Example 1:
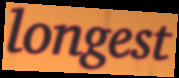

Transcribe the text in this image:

longest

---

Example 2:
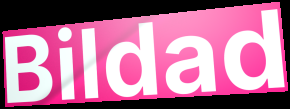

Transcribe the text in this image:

Bildad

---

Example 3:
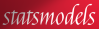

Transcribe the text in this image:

statsmodels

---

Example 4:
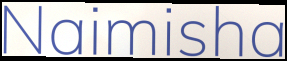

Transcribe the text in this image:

Naimisha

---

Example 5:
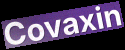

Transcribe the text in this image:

Covaxin